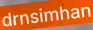
drnsimhan